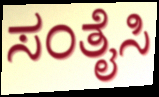
ಸಂತೈಸಿ